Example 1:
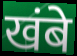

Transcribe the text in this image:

खंबे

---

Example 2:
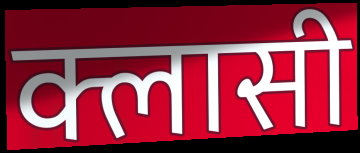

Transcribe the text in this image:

क्लासी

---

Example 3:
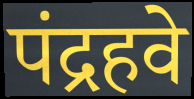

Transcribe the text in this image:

पंद्रहवे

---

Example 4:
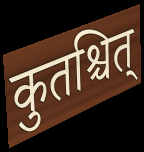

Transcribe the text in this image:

कुतश्चित्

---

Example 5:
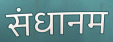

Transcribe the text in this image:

संधानम